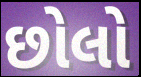
છોલો